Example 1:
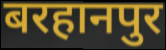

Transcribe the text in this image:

बरहानपुर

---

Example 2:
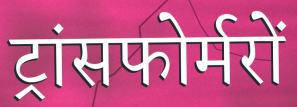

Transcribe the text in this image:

ट्रांसफोर्मरों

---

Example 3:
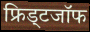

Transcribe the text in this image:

फ्रिड्टजॉफ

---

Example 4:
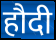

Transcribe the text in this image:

हौदी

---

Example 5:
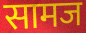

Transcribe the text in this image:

सामज